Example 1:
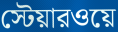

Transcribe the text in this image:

স্টেয়ারওয়ে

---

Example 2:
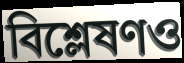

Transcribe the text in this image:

বিশ্লেষণও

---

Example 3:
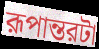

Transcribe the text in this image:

রূপান্তরটা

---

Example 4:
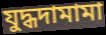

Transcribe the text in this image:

যুদ্ধদামামা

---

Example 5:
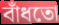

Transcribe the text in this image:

বাঁধতো